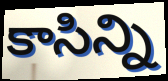
కాసిన్ని